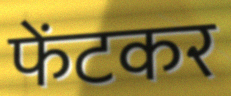
फेंटकर